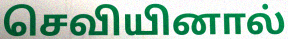
செவியினால்